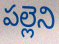
పల్లెని